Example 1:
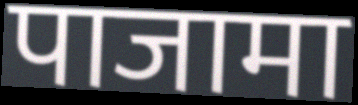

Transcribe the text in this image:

पाजामा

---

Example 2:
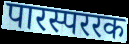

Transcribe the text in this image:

पारस्पररक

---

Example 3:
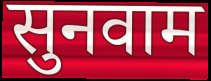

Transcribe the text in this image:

सुनवाम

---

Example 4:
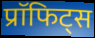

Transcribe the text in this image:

प्रॉफिट्स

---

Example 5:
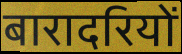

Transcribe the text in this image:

बारादरियों